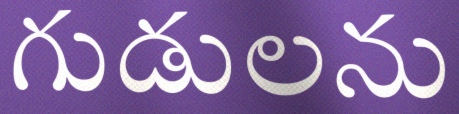
గుడులను